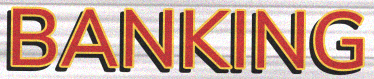
BANKING